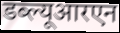
डब्ल्यूआरएन